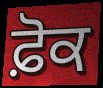
ਫ਼ੋਕ